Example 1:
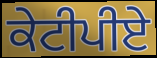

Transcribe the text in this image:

ਕੇਟੀਪੀਏ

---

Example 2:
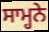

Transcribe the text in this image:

ਸਾਮ੍ਹਨੇ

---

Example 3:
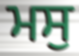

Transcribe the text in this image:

ਮਸੁ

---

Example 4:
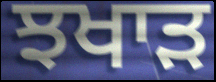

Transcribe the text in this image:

ਝਖਾੜ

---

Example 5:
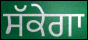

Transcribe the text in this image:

ਸੱਕੇਗਾ